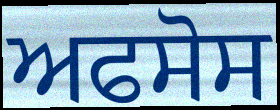
ਅਫਸੋਸ